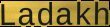
Ladakh